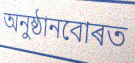
অনুষ্ঠানবোৰত